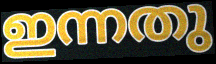
ഇന്നതു